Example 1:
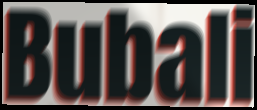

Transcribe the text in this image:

Bubali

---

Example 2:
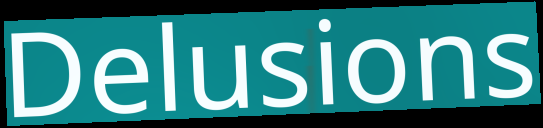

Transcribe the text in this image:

Delusions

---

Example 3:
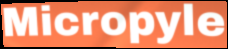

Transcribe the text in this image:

Micropyle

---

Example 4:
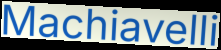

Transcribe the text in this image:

Machiavelli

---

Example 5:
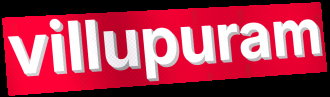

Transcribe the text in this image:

villupuram